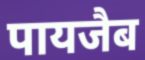
पायजैब